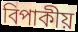
বিপাকীয়